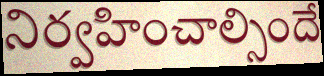
నిర్వహించాల్సిందే